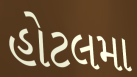
હોટલમા